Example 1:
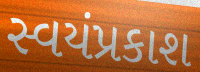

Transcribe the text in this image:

સ્વયંપ્રકાશ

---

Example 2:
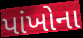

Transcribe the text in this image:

પાંખોના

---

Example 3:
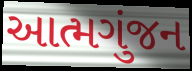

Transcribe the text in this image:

આત્મગુંજન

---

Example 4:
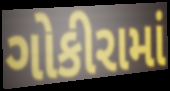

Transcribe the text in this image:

ગોકીરામાં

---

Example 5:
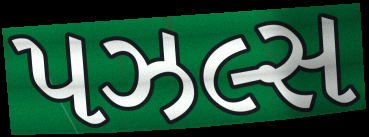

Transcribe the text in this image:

પઝલ્સ